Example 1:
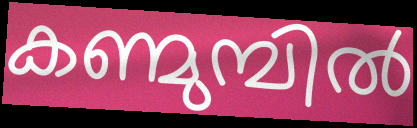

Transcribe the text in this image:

കണ്മുമ്പിൽ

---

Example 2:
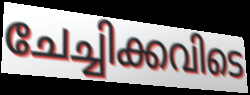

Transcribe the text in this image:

ചേച്ചിക്കവിടെ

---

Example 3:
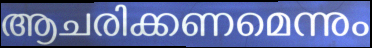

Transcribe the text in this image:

ആചരിക്കണമെന്നും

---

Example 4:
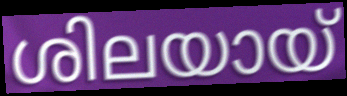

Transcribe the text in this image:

ശിലയായ്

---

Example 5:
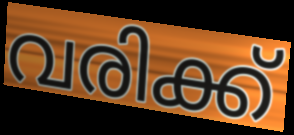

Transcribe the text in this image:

വരിക്ക്